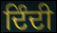
ਦਿੰਦੀ